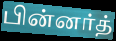
பின்னர்த்